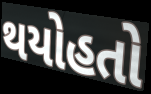
થયોહતો